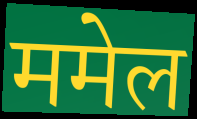
ममेल